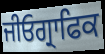
ਜੀਓਗ੍ਰਾਫਿਕ